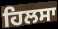
ਹਿਲਸਾ